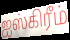
ஐஸ்கிரீம்